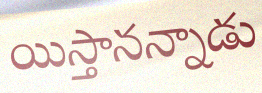
యిస్తానన్నాడు